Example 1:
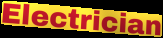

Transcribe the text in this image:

Electrician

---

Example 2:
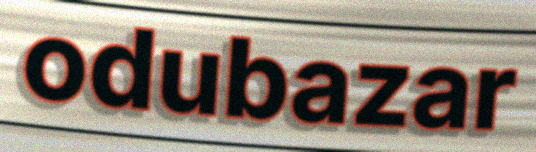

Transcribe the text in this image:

odubazar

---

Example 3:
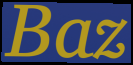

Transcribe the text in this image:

Baz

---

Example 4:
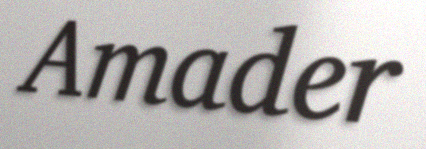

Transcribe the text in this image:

Amader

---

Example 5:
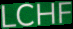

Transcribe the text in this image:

LCHF